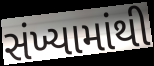
સંખ્યામાંથી